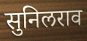
सुनिलराव